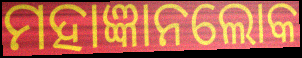
ମହାଜ୍ଞାନଲୋକ